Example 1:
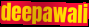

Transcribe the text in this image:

deepawali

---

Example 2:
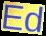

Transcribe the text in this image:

Ed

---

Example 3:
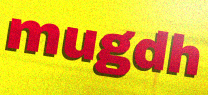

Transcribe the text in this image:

mugdh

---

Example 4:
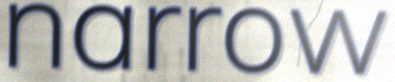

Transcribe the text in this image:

narrow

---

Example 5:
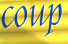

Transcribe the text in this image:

coup